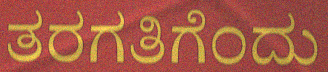
ತರಗತಿಗೆಂದು